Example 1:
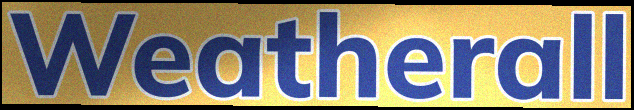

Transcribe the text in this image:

Weatherall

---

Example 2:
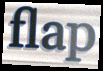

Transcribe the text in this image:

flap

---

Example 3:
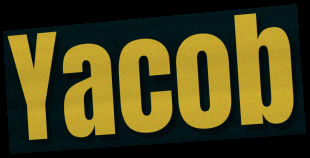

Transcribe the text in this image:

Yacob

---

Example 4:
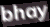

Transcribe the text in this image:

bhay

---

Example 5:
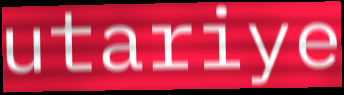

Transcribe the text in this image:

utariye